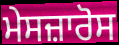
ਮੇਸਜ਼ਾਰੋਸ